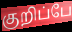
குறிப்பே